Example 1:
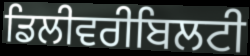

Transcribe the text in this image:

ਡਿਲੀਵਰੀਬਿਲਟੀ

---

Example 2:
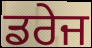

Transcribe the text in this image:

ਡਰੇਜ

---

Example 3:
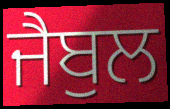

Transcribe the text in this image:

ਜੈਬੁਲ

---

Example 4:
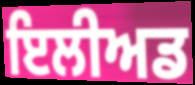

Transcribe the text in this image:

ਇਲੀਅਡ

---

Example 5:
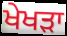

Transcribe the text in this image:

ਖੇਖੜਾ